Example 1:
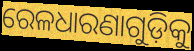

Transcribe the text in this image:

ରେଳଧାରଣାଗୁଡ଼ିକୁ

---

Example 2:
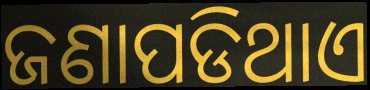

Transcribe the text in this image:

ଜଣାପଡିଥାଏ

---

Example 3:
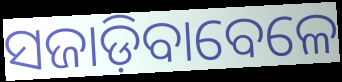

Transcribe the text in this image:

ସଜାଡ଼ିବାବେଳେ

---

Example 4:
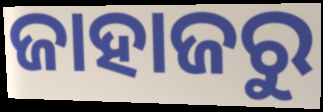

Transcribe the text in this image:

ଜାହାଜରୁ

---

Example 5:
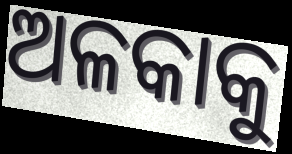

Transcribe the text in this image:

ଅଳକାକୁ